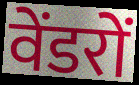
वेंडरों